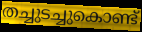
തച്ചുടച്ചുകൊണ്ട്